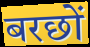
बरछों